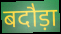
बदौड़ा